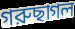
গরুছাগল